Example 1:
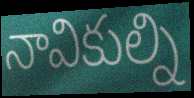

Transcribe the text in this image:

నావికుల్ని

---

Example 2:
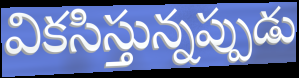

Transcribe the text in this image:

వికసిస్తున్నప్పుడు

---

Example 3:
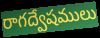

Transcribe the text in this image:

రాగద్వేషములు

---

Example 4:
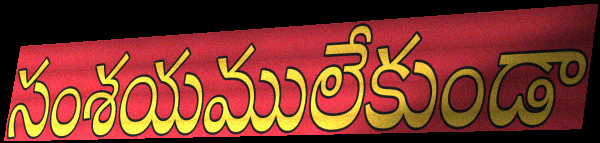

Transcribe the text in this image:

సంశయములేకుండా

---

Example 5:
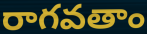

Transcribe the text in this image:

రాగవతాం